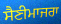
ਸੈਣੀਮਾਜਰਾ